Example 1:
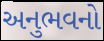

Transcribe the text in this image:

અનુભવનો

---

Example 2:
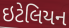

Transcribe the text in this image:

ઇટેલિયન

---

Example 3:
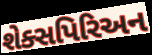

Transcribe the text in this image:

શેક્સપિરિઅન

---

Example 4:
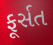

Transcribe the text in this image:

ફૂર્સત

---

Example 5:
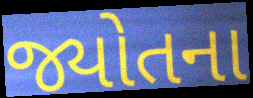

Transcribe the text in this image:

જ્યોતના